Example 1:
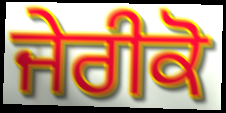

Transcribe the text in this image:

ਜੇਰੀਕੋ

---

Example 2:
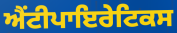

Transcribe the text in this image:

ਐਂਟੀਪਾਇਰੇਟਿਕਸ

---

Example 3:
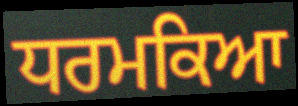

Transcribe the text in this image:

ਧਰਮਕਿਆ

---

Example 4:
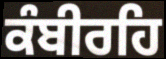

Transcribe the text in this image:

ਕੰਬੀਰਹਿ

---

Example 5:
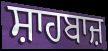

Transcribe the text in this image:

ਸ਼ਾਹਬਾਜ਼